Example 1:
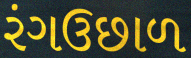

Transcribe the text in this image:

રંગઉછાળ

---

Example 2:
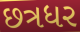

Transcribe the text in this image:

છત્રધર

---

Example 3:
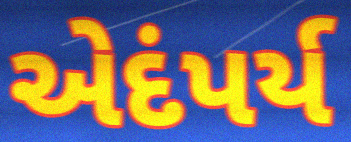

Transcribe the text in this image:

એદંપર્ય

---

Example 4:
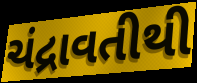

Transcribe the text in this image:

ચંદ્રાવતીથી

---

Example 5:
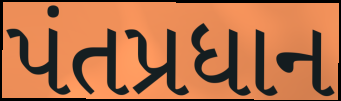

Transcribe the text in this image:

પંતપ્રધાન